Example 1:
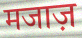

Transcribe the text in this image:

मजाज़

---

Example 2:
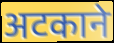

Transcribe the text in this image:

अटकाने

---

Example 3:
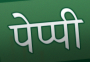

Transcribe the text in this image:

पेप्पी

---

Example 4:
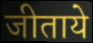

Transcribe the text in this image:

जीताये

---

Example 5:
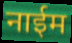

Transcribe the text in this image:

नाईम